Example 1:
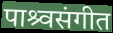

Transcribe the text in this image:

पाश्र्वसंगीत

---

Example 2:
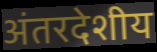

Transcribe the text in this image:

अंतरदेशीय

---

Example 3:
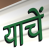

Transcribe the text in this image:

याचें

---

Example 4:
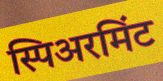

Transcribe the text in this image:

स्पिअरमिंट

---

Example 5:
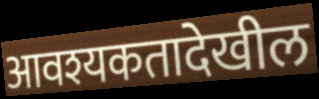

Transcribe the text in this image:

आवश्यकतादेखील